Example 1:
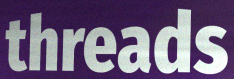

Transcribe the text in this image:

threads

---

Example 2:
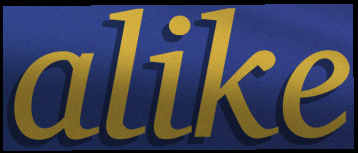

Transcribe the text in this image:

alike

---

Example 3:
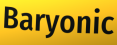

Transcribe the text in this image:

Baryonic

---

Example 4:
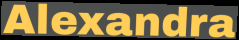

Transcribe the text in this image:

Alexandra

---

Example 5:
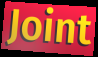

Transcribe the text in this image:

Joint